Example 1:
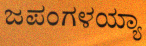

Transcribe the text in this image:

ಜಪಂಗಳಯ್ಯಾ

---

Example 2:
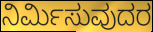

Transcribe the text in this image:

ನಿರ್ಮಿಸುವುದರ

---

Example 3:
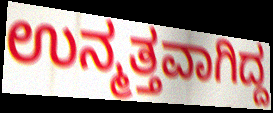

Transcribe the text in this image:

ಉನ್ಮತ್ತವಾಗಿದ್ದ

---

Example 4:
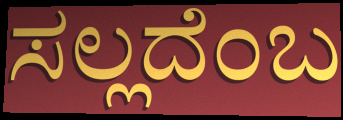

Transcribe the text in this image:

ಸಲ್ಲದೆಂಬ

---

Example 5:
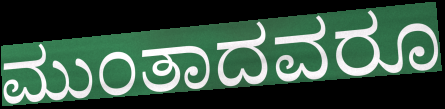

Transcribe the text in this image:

ಮುಂತಾದವರೂ